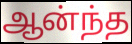
ஆன்ந்த